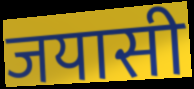
जयासी